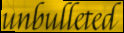
unbulleted